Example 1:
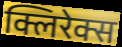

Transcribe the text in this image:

क्लिरेक्स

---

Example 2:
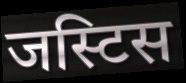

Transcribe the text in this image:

जस्‍टिस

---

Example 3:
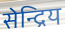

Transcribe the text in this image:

सेन्द्रिय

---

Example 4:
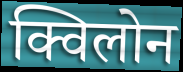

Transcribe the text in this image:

क्विलोन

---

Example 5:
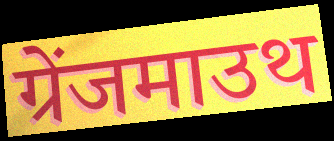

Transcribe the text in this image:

ग्रेंजमाउथ